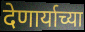
देणार्याच्या